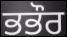
ਭਭੌਰ